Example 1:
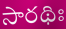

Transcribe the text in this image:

సారథిః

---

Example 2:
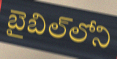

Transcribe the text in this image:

బైబిల్‌లోని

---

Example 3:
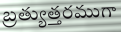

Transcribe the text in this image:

బ్రత్యుత్తరముగా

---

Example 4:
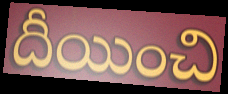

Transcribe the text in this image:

దీయించి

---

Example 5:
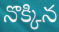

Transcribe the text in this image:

నొక్కిన